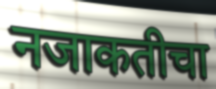
नजाकतीचा